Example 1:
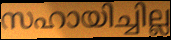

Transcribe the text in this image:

സഹായിച്ചില്ല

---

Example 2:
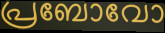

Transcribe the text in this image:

പ്രബോവോ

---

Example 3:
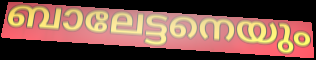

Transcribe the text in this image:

ബാലേട്ടനെയും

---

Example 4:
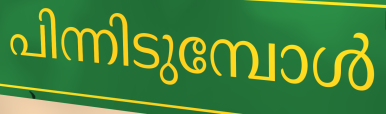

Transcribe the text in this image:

പിന്നിടുമ്പോൾ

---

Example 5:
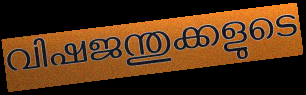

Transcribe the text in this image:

വിഷജന്തുക്കളുടെ